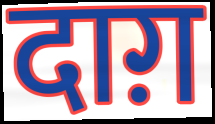
दाग़